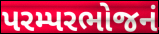
પરમ્પરભોજનં